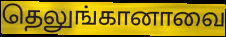
தெலுங்கானாவை